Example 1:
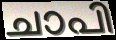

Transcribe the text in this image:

ചാപി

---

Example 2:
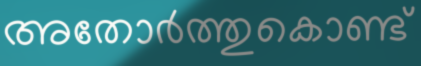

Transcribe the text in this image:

അതോർത്തുകൊണ്ട്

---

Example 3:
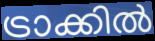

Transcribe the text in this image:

ട്രാക്കിൽ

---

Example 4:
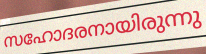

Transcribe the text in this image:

സഹോദരനായിരുന്നു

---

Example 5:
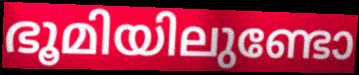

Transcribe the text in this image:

ഭൂമിയിലുണ്ടോ